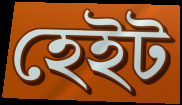
হেইট